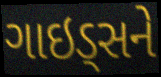
ગાઇડ્સને